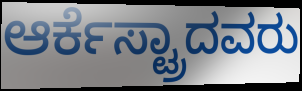
ಆರ್ಕೆಸ್ಟ್ರಾದವರು